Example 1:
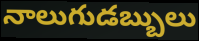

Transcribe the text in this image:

నాలుగుడబ్బులు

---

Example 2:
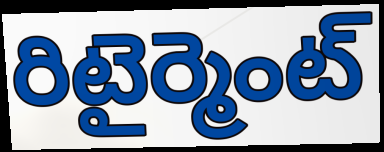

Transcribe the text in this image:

రిటైర్మెంట్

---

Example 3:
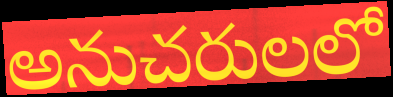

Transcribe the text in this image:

అనుచరులలో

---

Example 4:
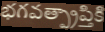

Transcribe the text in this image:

భగవత్ప్రాప్తికి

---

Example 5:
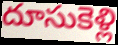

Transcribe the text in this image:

దూసుకెళ్లి